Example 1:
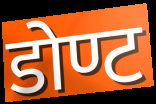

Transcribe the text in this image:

डोण्ट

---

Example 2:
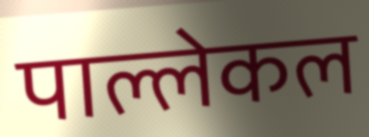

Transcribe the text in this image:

पाल्लेकल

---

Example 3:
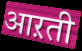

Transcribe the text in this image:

आऱती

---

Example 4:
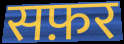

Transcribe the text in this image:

सफ़र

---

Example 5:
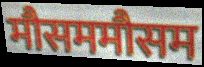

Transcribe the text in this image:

मौसममौसम